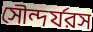
সৌন্দর্যরস